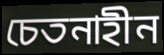
চেতনাহীন